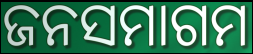
ଜନସମାଗମ